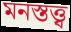
মনস্তত্ত্ব